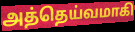
அத்தெய்வமாகி